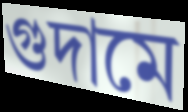
গুদামে